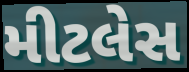
મીટલેસ